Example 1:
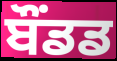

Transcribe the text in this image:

ਬੌਂਡਡ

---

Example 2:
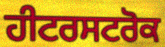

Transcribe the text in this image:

ਹੀਟਰਸਟਰੋਕ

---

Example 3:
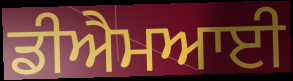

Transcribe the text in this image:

ਡੀਐਮਆਈ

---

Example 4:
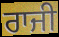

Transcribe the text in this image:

ਰਾਜੀ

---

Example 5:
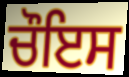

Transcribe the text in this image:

ਚੌਇਸ